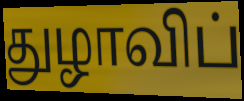
துழாவிப்